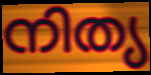
നിത്യ